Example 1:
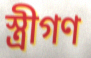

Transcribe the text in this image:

স্ত্রীগণ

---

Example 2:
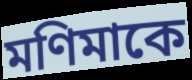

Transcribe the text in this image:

মণিমাকে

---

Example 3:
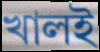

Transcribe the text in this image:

খালই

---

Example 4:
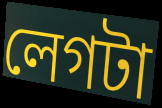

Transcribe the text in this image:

লেগটা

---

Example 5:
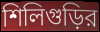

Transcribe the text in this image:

শিলিগুড়ির